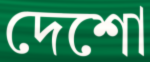
দেশো